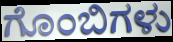
ಗೊಂಬಿಗಳು